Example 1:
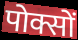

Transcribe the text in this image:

पोक्सों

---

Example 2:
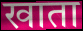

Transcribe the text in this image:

खाता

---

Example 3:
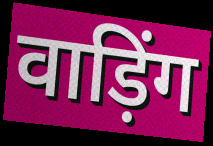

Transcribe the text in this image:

वाड़िंग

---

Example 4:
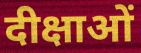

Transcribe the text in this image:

दीक्षाओं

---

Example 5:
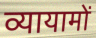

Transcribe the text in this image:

व्यायामों